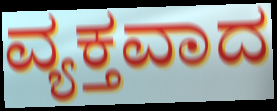
ವ್ಯಕ್ತವಾದ